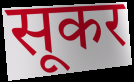
सूकर